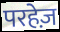
परहेज़